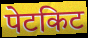
पेटकिट